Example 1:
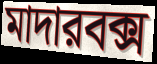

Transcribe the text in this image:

মাদারবক্স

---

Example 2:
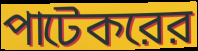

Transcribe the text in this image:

পাটেকরের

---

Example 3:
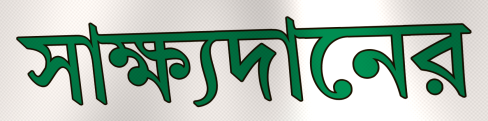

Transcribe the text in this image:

সাক্ষ্যদানের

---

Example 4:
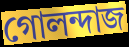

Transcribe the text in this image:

গোলন্দাজ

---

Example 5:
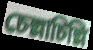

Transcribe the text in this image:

চেল্লাচিল্লি